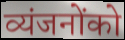
व्यंजनोंको